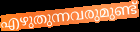
എഴുതുന്നവരുമുണ്ട്